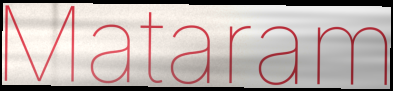
Mataram